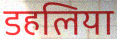
डहलिया